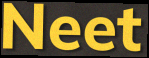
Neet